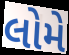
લોમે